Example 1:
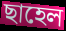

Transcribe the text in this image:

ছাহেল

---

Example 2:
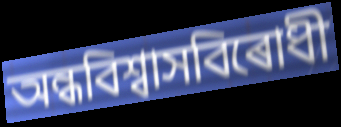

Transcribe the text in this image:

অন্ধবিশ্বাসবিৰোধী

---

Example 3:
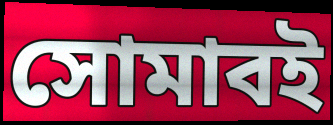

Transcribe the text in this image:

সোমাবই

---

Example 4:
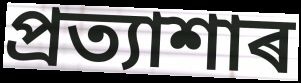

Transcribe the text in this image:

প্ৰত্যাশাৰ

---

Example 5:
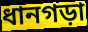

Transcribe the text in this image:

ধানগড়া